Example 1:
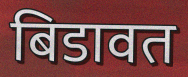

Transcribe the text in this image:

बिडावत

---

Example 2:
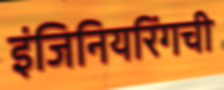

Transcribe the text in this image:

इंजिनियरिंगची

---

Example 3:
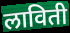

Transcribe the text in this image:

लाविती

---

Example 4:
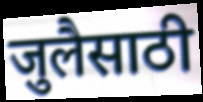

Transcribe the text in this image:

जुलैसाठी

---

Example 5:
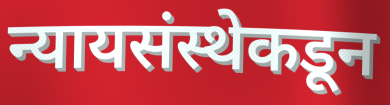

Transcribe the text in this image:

न्यायसंस्थेकडून